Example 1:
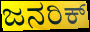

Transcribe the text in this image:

ಜನರಿಕ್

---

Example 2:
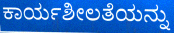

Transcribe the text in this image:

ಕಾರ್ಯಶೀಲತೆಯನ್ನು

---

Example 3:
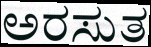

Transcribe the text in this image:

ಅರಸುತ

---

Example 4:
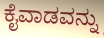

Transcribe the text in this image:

ಕೈವಾಡವನ್ನು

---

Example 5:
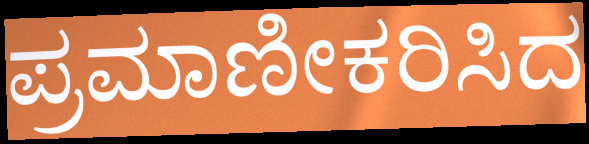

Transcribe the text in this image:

ಪ್ರಮಾಣೀಕರಿಸಿದ